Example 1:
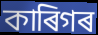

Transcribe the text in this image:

কাৰিগৰ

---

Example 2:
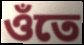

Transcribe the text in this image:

ওঁতে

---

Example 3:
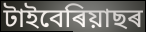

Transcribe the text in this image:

টাইবেৰিয়াছৰ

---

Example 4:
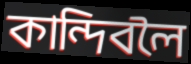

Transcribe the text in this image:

কান্দিবলৈ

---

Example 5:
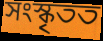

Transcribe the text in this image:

সংস্কৃতত